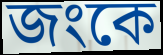
জংকে